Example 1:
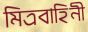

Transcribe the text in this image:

মিত্রবাহিনী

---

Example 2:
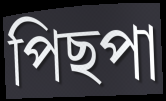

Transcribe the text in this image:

পিছপা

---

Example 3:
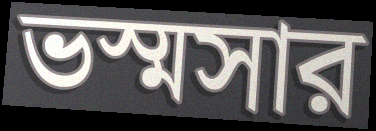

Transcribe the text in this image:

ভস্মসার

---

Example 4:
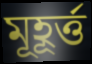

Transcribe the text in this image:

মূহূর্ত্ত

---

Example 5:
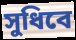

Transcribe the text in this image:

সুধিবে